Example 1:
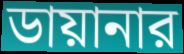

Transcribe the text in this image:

ডায়ানার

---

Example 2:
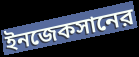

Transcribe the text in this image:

ইনজেকসানের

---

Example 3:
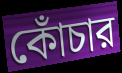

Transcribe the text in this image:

কোঁচার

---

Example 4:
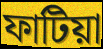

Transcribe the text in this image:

ফাটিয়া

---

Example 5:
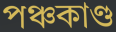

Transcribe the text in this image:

পঞ্চকাণ্ড